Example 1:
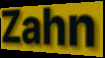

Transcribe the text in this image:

Zahn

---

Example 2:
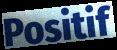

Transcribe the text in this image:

Positif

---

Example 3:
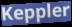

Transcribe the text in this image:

Keppler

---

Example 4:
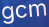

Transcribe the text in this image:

gcm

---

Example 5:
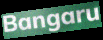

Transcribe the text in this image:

Bangaru